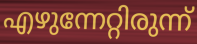
എഴുന്നേറ്റിരുന്ന്